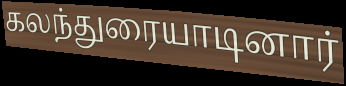
கலந்துரையாடினார்